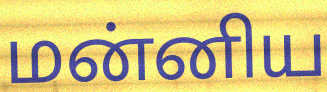
மன்னிய